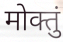
मोक्तुं